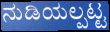
ನುಡಿಯಲ್ಪಟ್ಟ